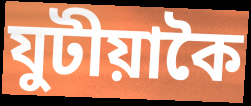
যুটীয়াকৈ